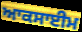
ਆਕਸਾਈਮ